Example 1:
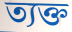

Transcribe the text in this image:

ত্যক্ত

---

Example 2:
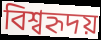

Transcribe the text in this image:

বিশ্বহৃদয়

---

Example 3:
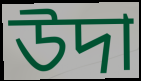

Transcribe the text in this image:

উদা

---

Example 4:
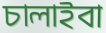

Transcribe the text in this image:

চালাইবা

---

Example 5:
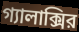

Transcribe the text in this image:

গ্যালাক্সির